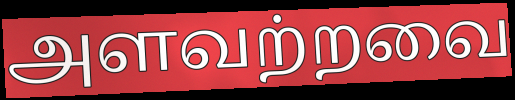
அளவற்றவை